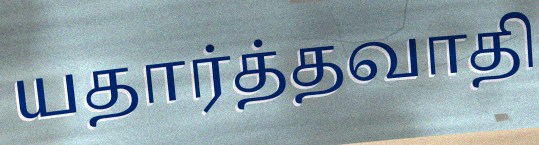
யதார்த்தவாதி